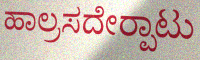
ಹಾಲ್ರಸದೇರ‍್ಪಾಟು